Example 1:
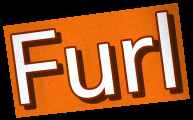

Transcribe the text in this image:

Furl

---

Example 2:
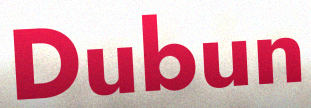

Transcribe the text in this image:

Dubun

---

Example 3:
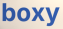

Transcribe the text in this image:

boxy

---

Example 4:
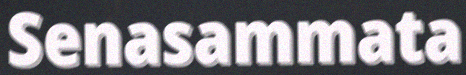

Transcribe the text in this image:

Senasammata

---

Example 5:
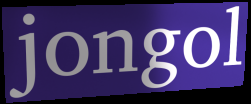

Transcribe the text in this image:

jongol